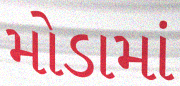
મોડામાં